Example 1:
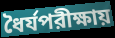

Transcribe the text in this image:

ধৈর্যপরীক্ষায়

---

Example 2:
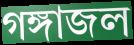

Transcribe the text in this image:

গঙ্গাজল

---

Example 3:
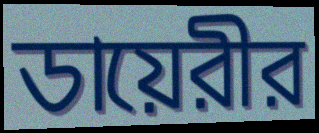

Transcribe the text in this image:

ডায়েরীর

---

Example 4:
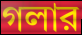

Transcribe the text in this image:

গলার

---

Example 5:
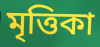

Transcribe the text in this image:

মৃত্তিকা